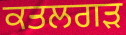
ਕਤਲਗੜ